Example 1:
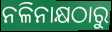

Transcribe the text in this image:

ନଳିନାକ୍ଷଠାରୁ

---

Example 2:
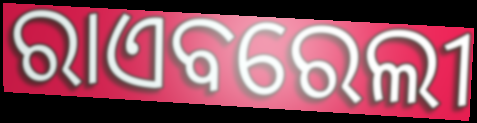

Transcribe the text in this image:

ରାଏବରେଲୀ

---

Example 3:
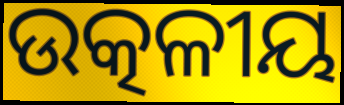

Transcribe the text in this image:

ଉତ୍କଳୀୟ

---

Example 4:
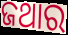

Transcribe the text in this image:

ଜଥାର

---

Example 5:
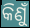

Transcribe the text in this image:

କିଣୁଁ